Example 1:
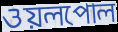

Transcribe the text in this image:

ওয়লপোল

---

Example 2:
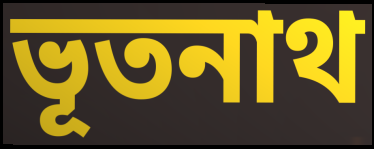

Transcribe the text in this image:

ভূতনাথ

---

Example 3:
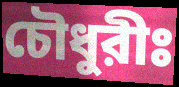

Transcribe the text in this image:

চৌধুরীঃ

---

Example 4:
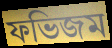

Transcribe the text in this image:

ফভিজম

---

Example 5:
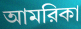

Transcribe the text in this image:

আমরিকা